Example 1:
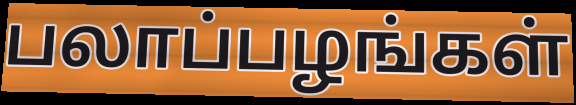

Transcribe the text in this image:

பலாப்பழங்கள்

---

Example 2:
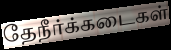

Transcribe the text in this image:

தேநீர்க்கடைகள்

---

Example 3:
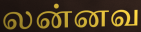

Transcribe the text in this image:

லன்னவ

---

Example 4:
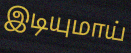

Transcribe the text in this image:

இடியுமாய்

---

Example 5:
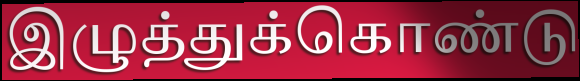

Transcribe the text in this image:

இழுத்துக்கொண்டு